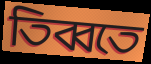
তিব্বতে